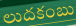
లుదకంబు